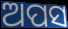
ଅପସ